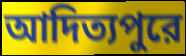
আদিত্যপুরে